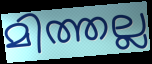
മിത്തല്ല